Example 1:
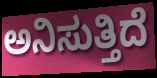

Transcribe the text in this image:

ಅನಿಸುತ್ತಿದೆ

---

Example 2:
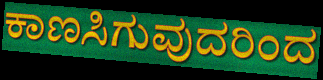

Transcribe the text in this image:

ಕಾಣಸಿಗುವುದರಿಂದ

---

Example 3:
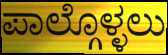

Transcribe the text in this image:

ಪಾಲ್ಗೊಳ್ಳಲು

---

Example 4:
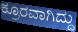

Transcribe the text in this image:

ಕ್ರೂರವಾಗಿದ್ದು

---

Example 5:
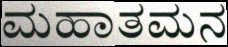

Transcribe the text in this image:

ಮಹಾತಮನ